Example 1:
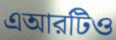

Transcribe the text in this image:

এআরটিও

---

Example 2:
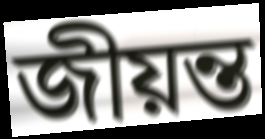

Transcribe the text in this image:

জীয়ন্ত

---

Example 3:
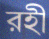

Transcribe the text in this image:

রহী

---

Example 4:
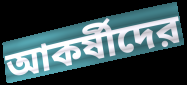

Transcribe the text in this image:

আকর্ষীদের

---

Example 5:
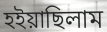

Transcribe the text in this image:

হইয়াছিলাম